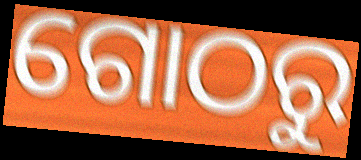
ଗୋଠରୁ